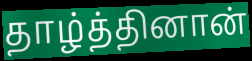
தாழ்த்தினான்